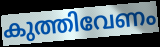
കുത്തിവേണം